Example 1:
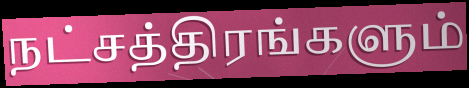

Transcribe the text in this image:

நட்சத்திரங்களும்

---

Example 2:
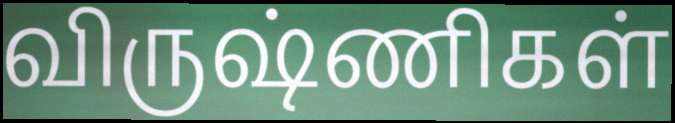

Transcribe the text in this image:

விருஷ்ணிகள்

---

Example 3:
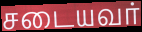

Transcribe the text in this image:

சடையவர்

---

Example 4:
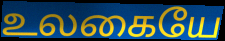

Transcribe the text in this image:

உலகையே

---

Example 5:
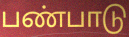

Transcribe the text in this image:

பண்பாடு